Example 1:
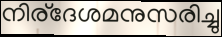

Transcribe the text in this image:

നിര്ദേശമനുസരിച്ചു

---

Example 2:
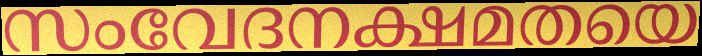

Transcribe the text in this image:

സംവേദനക്ഷമതയെ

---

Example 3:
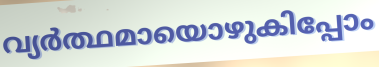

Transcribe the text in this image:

വ്യർത്ഥമായൊഴുകിപ്പോം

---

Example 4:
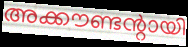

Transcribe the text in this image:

അക്കൗണ്ടന്റായി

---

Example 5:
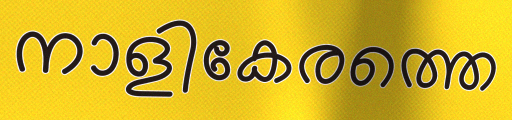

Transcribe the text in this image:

നാളികേരത്തെ